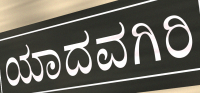
ಯಾದವಗಿರಿ